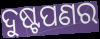
ଦୁଷ୍ଟପଣର